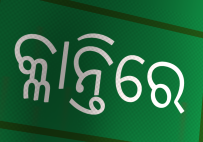
କ୍ଳାନ୍ତିରେ